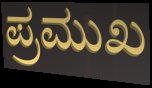
ಪ್ರಮುಖ